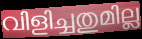
വിളിച്ചതുമില്ല